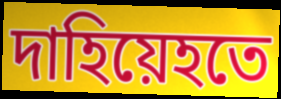
দাহিয়েহতে